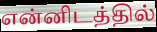
என்னிடத்தில்